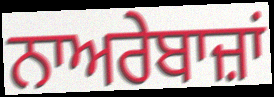
ਨਾਅਰੇਬਾਜ਼ਾਂ